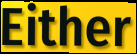
Either